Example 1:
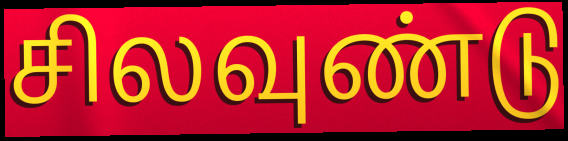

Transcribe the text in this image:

சிலவுண்டு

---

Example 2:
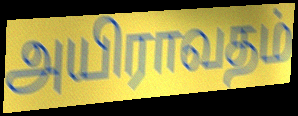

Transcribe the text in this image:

அயிராவதம்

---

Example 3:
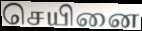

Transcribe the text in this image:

செயினை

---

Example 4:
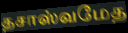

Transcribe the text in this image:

தசாஸ்வமேத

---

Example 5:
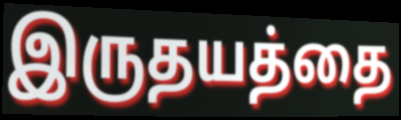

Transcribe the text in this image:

இருதயத்தை